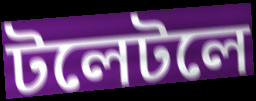
টলেটলে